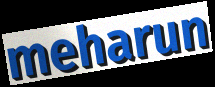
meharun